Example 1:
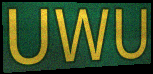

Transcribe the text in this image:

UWU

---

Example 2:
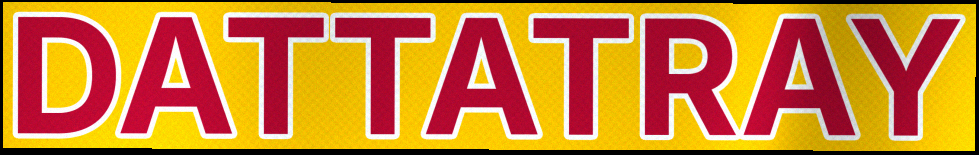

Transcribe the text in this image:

DATTATRAY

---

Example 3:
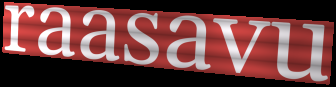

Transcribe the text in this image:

raasavu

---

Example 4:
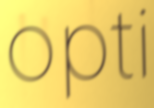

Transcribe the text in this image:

opti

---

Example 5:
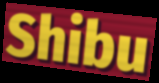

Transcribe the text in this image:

Shibu